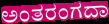
ಅಂತರಂಗದಾ